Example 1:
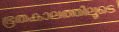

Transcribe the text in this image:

ഭൂതകാലത്തിലൂടെ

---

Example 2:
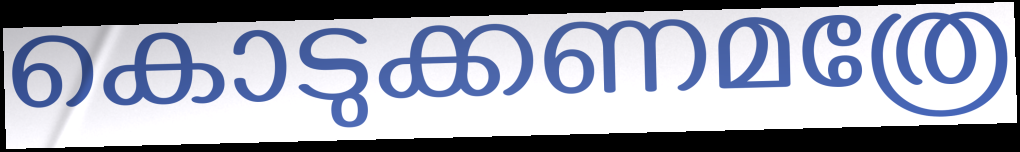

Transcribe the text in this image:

കൊടുക്കണമത്രേ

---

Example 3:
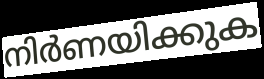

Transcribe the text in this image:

നിർണയിക്കുക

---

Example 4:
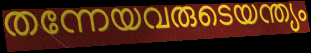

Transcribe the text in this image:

തന്നേയവരുടെയന്ത്യം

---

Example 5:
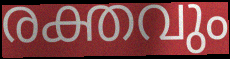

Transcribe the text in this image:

രക്തവും